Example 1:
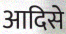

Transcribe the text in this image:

आदिसे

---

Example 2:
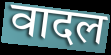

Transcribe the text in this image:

वादल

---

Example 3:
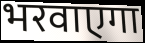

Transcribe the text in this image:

भरवाएगा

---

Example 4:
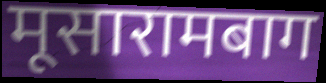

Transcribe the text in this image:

मूसारामबाग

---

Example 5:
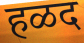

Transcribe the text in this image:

हळद